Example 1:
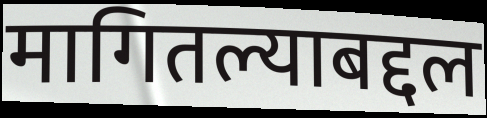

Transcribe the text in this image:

मागितल्याबद्दल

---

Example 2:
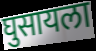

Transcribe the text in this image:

घुसायला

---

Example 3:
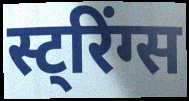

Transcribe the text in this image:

स्ट्रिंग्स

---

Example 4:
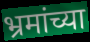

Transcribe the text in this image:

भ्रमांच्या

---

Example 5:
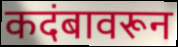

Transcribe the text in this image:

कदंबावरून